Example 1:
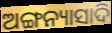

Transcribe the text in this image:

ଅଙ୍ଗନ୍ୟାସାଦି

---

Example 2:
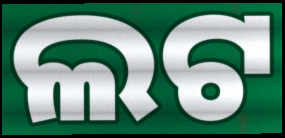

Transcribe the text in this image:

ଲଟ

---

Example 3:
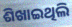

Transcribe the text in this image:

ଶିଖାଇଥିଲି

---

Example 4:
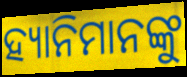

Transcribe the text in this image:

ହ୍ୟାନିମାନଙ୍କୁ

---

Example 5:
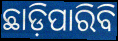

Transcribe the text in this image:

ଛାଡ଼ିପାରିବି